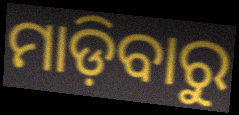
ମାଡ଼ିବାରୁ